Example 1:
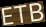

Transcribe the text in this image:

ETB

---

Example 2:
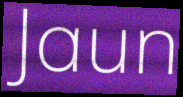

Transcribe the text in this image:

Jaun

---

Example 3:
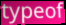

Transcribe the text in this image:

typeof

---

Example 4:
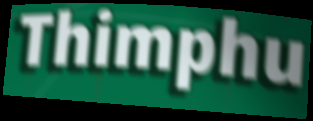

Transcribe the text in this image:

Thimphu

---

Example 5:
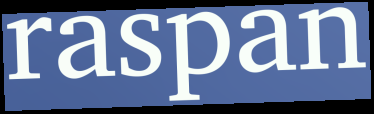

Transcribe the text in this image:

raspan